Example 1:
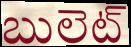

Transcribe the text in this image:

బులెట్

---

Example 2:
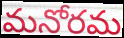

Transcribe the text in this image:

మనోరమ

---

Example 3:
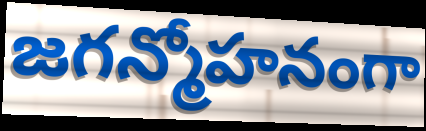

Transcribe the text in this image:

జగన్మోహనంగా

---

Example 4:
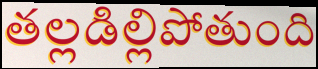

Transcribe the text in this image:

తల్లడిల్లిపోతుంది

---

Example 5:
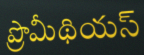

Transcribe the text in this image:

ప్రొమీథియస్